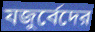
যজুর্বেদের